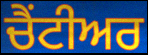
ਚੈਂਟੀਅਰ